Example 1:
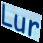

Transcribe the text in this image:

Lur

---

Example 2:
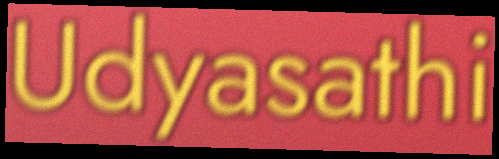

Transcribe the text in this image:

Udyasathi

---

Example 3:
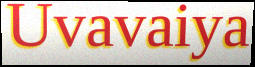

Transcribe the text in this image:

Uvavaiya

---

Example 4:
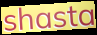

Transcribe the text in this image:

shasta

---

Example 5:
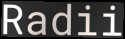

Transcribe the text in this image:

Radii